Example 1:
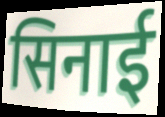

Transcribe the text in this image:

सिनाई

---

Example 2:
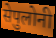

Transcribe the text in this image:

सेपुलोनी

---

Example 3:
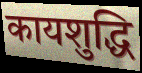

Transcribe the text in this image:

कायशुद्धि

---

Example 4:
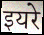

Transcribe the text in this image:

इयरे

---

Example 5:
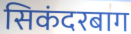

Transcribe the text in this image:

सिकंदरबाग